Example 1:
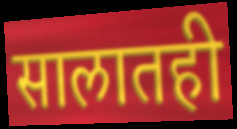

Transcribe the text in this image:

सालातही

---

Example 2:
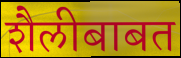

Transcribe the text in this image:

शैलीबाबत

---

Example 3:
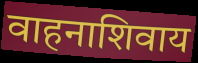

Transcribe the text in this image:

वाहनाशिवाय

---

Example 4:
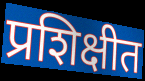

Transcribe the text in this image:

प्रशिक्षीत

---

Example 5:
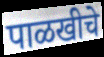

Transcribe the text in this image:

पाळखीचे